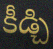
కీడ్చి